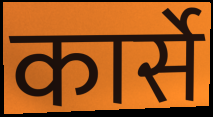
कार्से